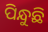
ପିନ୍ଧୁଛି